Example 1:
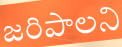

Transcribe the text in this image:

జరిపాలని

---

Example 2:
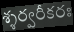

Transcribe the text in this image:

శ్శర్వరీకరః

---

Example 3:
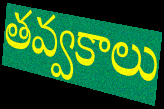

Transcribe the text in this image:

తవ్వకాలు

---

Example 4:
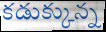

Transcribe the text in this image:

కడుక్కున్న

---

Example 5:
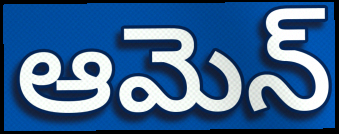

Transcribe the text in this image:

ఆమెన్